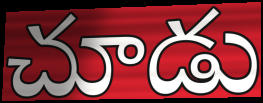
చూడు